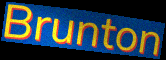
Brunton